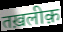
तख़लीक़